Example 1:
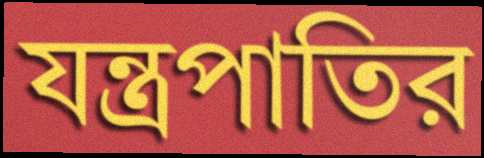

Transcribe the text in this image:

যন্ত্রপাতির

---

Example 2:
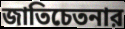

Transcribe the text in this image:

জাতিচেতনার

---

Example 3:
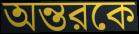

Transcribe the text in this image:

অন্তরকে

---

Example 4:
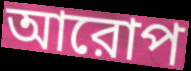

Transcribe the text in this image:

আরোপ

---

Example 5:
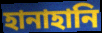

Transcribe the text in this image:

হানাহানি